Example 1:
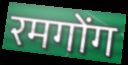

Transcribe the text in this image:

रमगोंग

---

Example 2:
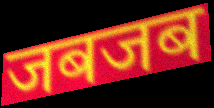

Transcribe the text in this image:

जबजब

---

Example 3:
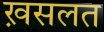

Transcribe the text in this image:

ख़सलत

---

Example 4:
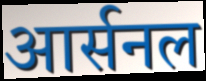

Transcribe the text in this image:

आर्सनल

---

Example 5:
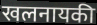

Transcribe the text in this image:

खलनायकी